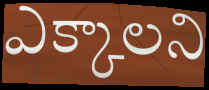
ఎక్కాలని